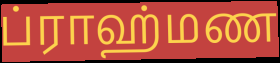
ப்ராஹ்மண